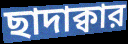
ছাদাক্বার